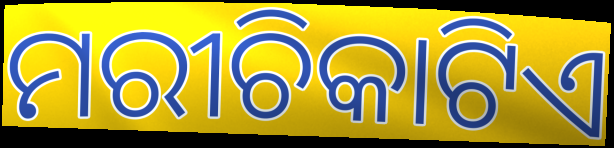
ମରୀଚିକାଟିଏ